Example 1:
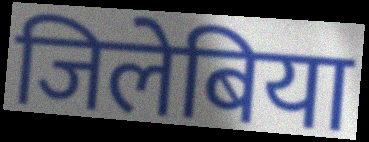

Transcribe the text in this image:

जिलेबिया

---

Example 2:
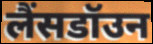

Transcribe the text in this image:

लैंसडॉउन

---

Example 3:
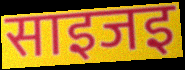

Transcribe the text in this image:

साइजइ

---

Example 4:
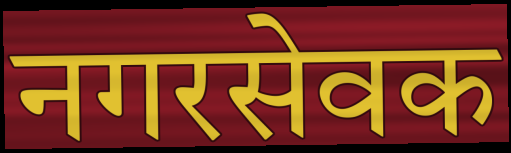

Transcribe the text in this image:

नगरसेवक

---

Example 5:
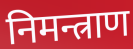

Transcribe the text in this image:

निमन्त्राण